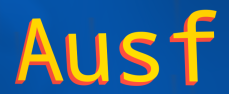
Ausf